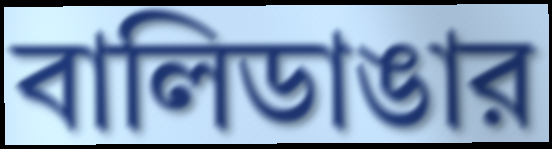
বালিডাঙার